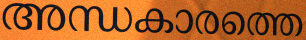
അന്ധകാരത്തെ